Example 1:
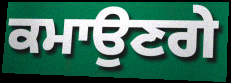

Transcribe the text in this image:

ਕਮਾਉਣਗੇ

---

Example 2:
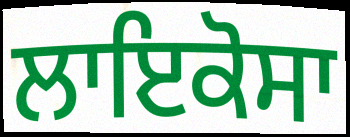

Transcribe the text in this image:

ਲਾਇਕੋਸਾ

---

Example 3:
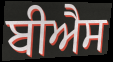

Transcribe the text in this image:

ਬੀਐਸ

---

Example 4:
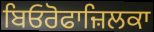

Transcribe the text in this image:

ਬਿਓਰੋਫਾਜ਼ਿਲਕਾ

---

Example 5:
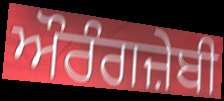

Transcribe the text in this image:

ਔਰੰਗਜ਼ੇਬੀ